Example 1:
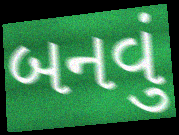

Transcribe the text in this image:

બનવું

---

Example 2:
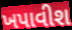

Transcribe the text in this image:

ખપાવીશ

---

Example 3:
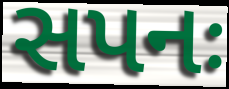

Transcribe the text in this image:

સપનઃ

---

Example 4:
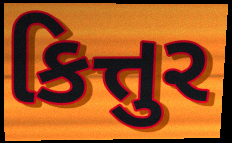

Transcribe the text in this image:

કિત્તુર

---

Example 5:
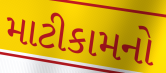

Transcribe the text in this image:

માટીકામનો